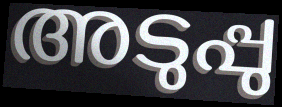
അടുപ്പു